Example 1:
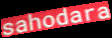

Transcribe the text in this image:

sahodara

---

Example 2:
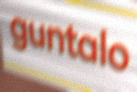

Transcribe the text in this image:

guntalo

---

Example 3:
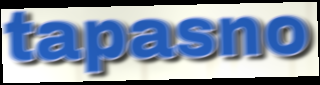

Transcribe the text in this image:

tapasno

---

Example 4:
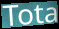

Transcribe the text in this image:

Tota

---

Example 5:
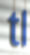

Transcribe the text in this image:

tl